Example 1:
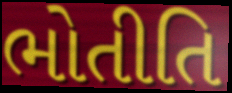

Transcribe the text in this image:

ભોતીતિ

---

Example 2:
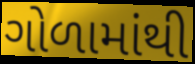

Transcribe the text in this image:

ગોળામાંથી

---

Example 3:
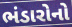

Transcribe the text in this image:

ભંડારોનો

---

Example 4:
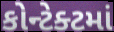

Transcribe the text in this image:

કોન્ટેક્ટમાં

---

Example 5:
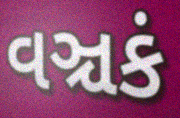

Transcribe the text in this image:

વઞ્ચકં